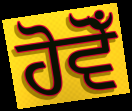
ਹੋਵੋਁ